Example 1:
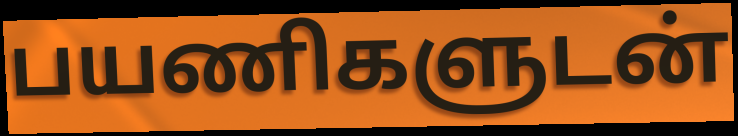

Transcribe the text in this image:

பயணிகளுடன்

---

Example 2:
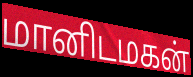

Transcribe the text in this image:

மானிடமகன்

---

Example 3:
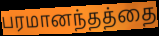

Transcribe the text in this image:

பரமானந்தத்தை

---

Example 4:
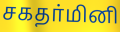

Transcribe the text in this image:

சகதர்மினி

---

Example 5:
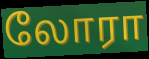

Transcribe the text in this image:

லோரா